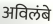
अविलंबे